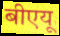
बीएयू